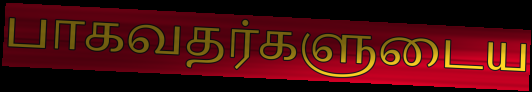
பாகவதர்களுடைய